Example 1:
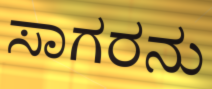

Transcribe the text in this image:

ಸಾಗರನು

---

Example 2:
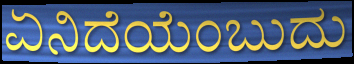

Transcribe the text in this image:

ಏನಿದೆಯೆಂಬುದು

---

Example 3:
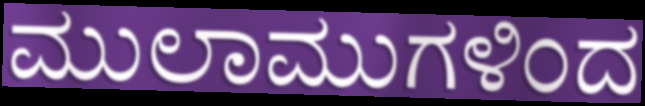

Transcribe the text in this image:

ಮುಲಾಮುಗಳಿಂದ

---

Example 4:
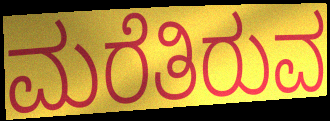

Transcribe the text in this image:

ಮರೆತಿರುವ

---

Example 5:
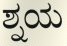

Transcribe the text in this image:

ಶ್ನಯ